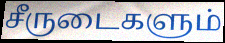
சீருடைகளும்